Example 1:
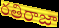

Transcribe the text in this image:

రతిరాజా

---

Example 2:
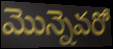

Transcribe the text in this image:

మొన్నెవరో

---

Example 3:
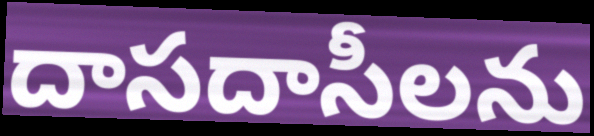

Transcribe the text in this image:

దాసదాసీలను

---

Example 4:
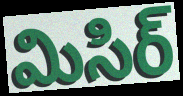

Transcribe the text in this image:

మిసిర్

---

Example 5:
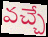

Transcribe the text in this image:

వచ్చే